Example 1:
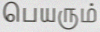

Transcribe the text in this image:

பெயரும்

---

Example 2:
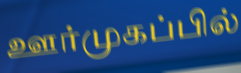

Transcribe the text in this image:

ஊர்முகப்பில்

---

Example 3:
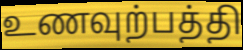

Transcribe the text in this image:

உணவுற்பத்தி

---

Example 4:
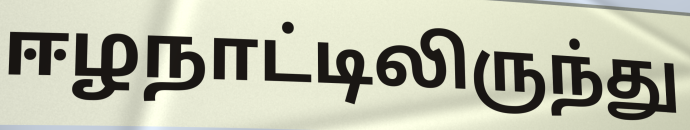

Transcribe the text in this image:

ஈழநாட்டிலிருந்து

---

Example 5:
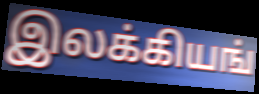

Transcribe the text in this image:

இலக்கியங்